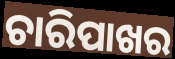
ଚାରିପାଖର